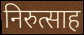
निरुत्साह